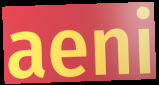
aeni